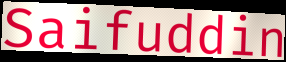
Saifuddin